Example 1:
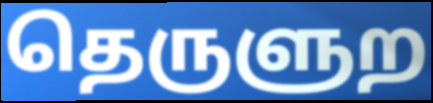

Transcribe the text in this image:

தெருளுற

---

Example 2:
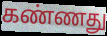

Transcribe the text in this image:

கண்ணது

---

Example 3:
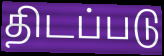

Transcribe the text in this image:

திடப்படு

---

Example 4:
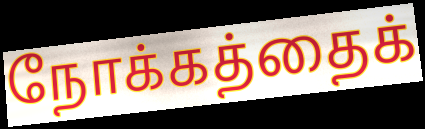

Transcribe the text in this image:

நோக்கத்தைக்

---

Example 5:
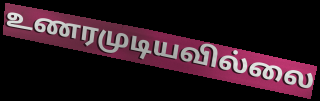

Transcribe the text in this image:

உணரமுடியவில்லை